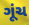
ગૂંચ